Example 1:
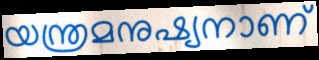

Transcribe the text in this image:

യന്ത്രമനുഷ്യനാണ്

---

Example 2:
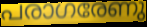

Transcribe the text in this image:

പരാഗരേണു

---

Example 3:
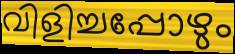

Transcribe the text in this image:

വിളിച്ചപ്പോഴും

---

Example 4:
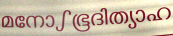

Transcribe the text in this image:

മനോഽഭൂദിത്യാഹ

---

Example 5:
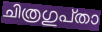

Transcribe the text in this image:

ചിത്രഗുപ്‌താ